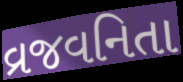
વ્રજવનિતા